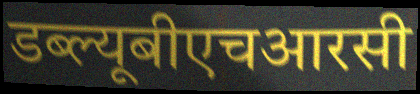
डब्ल्यूबीएचआरसी